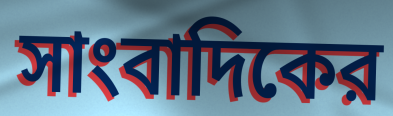
সাংবাদিকের